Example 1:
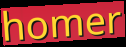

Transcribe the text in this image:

homer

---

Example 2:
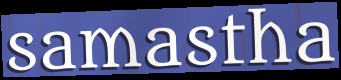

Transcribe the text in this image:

samastha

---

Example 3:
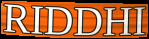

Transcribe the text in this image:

RIDDHI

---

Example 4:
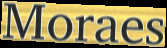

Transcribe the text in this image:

Moraes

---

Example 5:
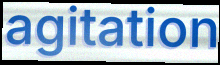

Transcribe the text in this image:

agitation